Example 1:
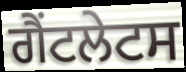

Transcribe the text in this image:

ਗੈਂਟਲੇਟਸ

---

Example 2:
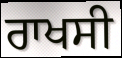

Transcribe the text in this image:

ਰਾਖਸੀ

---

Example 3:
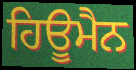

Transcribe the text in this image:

ਹਿਊਮੈਨ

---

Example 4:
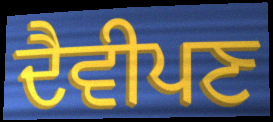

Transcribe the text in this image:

ਦੈਵੀਪਣ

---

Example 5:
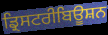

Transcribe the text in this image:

ਡ੍ਰਿਸਟਰੀਬਿਊਸ਼ਨ